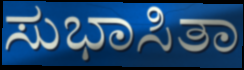
ಸುಭಾಸಿತಾ